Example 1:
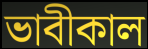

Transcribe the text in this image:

ভাবীকাল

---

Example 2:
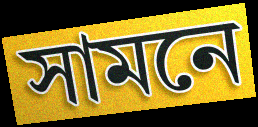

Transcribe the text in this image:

সামনে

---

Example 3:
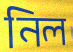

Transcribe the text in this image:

নিল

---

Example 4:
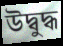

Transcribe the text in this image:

উদ্বুদ্ধ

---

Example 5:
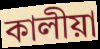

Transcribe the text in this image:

কালীয়া